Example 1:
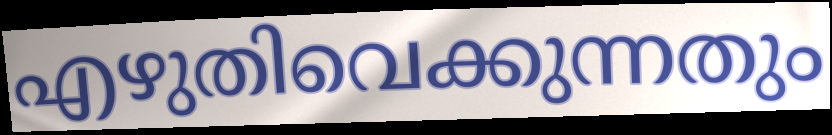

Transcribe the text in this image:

എഴുതിവെക്കുന്നതും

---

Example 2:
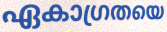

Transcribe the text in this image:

ഏകാഗ്രതയെ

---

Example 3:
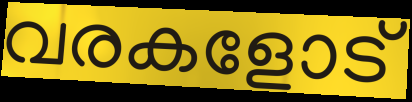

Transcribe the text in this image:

വരകളോട്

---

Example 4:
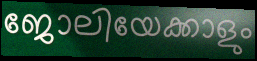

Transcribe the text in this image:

ജോലിയേക്കാളും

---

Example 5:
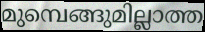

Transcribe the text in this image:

മുമ്പെങ്ങുമില്ലാത്ത